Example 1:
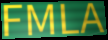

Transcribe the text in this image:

FMLA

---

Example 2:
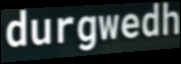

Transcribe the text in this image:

durgwedh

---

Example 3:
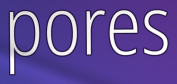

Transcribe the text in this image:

pores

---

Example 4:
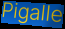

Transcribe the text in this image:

Pigalle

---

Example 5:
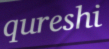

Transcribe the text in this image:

qureshi